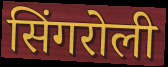
सिंगरोली